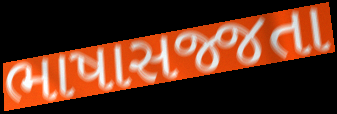
ભાષાસજ્જતા